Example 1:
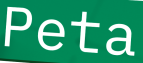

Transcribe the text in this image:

Peta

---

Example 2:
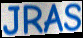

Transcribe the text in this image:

JRAS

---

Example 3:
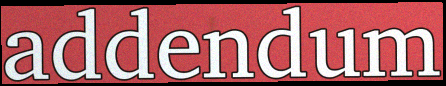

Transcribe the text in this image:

addendum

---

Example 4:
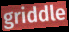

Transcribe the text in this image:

griddle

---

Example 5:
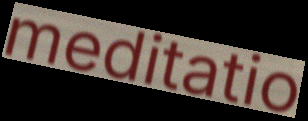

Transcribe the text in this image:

meditatio